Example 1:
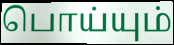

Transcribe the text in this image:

பொய்யும்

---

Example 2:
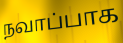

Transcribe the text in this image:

நவாப்பாக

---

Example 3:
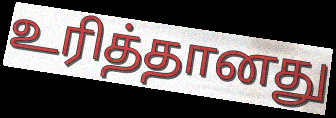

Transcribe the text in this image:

உரித்தானது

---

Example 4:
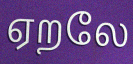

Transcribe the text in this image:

ஏறலே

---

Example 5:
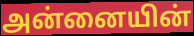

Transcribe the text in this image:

அன்னையின்